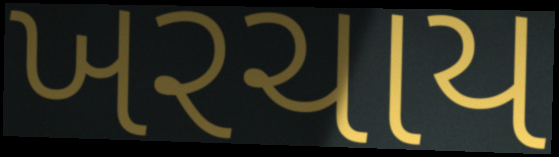
ખરચાય